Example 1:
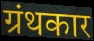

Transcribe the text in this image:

ग्रंथकार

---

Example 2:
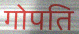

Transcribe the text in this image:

गोपति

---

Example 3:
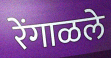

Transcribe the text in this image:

रेंगाळले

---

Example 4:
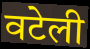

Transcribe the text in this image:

वटेली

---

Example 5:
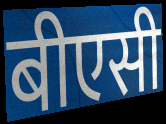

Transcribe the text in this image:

बीएसी